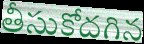
తీసుకోదగిన